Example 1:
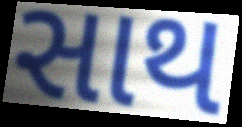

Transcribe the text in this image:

સાથ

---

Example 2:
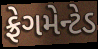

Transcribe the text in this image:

ફ્રેગમેન્ટેડ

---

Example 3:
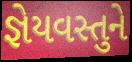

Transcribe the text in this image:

જ્ઞેયવસ્તુને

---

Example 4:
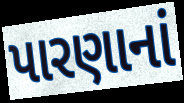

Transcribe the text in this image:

પારણાનાં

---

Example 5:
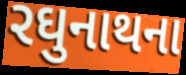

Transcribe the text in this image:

રઘુનાથના